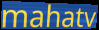
mahatv